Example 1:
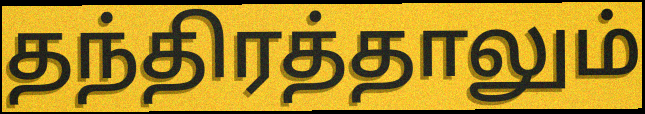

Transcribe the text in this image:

தந்திரத்தாலும்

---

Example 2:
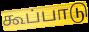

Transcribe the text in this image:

கூப்பாடு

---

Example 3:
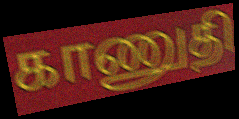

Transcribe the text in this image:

காணுதி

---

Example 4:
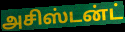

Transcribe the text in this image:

அசிஸ்டன்ட்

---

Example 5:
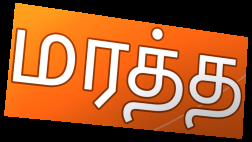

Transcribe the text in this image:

மரத்த